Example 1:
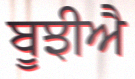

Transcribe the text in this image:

ਬੂਝੀਐ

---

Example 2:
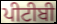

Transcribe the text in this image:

ਪੀਟੀਬੀ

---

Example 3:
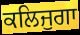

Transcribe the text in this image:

ਕਲਿਜੁਗਾ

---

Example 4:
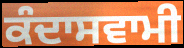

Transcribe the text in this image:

ਕੰਦਾਸਵਾਮੀ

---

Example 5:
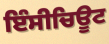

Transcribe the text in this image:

ਇੰਸੀਚਿਊਟ